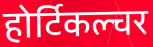
होर्टिकल्चर